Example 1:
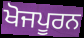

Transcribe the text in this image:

ਖੋਜਪੂਰਨ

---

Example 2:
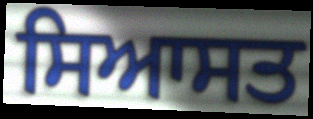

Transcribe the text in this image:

ਸਿਆਸਤ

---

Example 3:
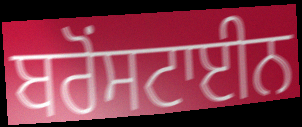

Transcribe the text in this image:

ਬਰੋਂਸਟਾਈਨ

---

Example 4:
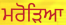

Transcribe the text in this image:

ਮਰੋੜਿਆ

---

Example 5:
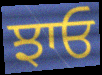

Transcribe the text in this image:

ਝਾਓ